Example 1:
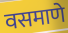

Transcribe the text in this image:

वसमाणे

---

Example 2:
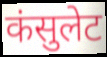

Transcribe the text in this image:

कंसुलेट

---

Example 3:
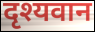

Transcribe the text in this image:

दृश्यवान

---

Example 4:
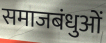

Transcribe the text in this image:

समाजबंधुओं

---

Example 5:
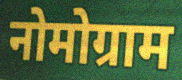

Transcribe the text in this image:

नोमोग्राम